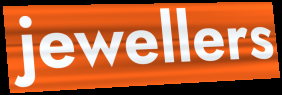
jewellers